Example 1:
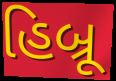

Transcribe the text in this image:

હિબ્રૂ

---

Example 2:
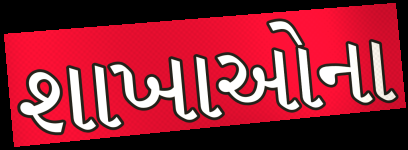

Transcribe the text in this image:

શાખાઓના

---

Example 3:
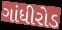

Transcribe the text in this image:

ગાંધીરોડ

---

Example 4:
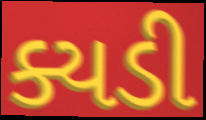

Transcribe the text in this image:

ક્યડી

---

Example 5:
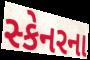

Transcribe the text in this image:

સ્કેનરના